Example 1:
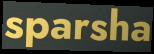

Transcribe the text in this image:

sparsha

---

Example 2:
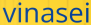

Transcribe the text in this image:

vinasei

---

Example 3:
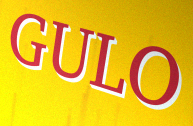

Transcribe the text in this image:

GULO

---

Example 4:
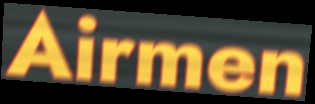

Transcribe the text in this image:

Airmen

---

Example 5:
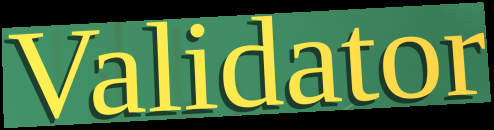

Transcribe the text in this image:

Validator